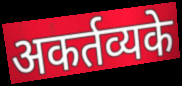
अकर्तव्यके